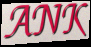
ANK